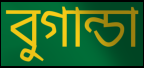
বুগান্ডা